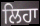
ਲਿਹਾ